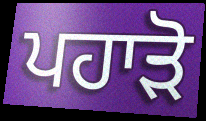
ਪਹਾੜੋ